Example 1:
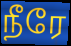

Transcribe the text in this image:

நீரே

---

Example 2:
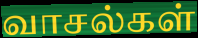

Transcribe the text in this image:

வாசல்கள்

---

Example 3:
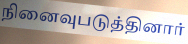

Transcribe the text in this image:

நினைவுபடுத்தினார்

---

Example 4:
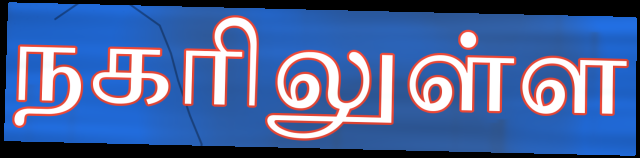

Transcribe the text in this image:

நகரிலுள்ள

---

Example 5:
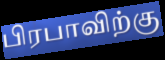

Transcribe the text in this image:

பிரபாவிற்கு